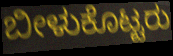
ಬೀಳುಕೊಟ್ಟರು